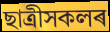
ছাত্ৰীসকলৰ